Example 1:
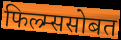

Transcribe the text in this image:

फिल्म्ससोबत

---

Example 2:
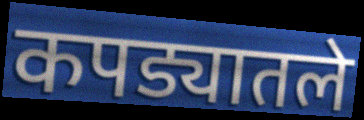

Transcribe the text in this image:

कपड्यातले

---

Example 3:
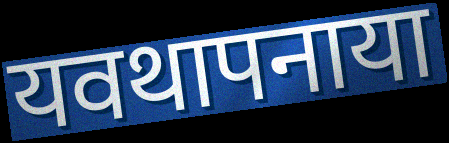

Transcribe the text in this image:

यवथापनाया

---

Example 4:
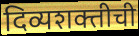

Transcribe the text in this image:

दिव्यशक्तीची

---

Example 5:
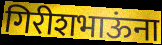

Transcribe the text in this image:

गिरीशभाऊंना